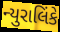
ન્યુરાલિંકે